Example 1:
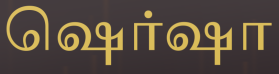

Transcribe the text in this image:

ஷெர்ஷா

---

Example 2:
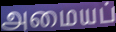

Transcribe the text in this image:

அமையப்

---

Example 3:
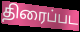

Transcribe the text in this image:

திரைப்பட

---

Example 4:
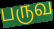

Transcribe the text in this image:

பருவ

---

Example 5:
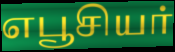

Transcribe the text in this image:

எபூசியர்